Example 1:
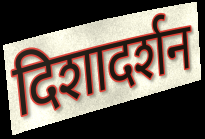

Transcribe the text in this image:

दिशादर्शन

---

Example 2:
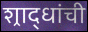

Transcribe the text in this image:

श्राद्धांची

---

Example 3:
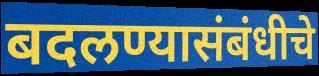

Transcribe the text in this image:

बदलण्यासंबंधीचे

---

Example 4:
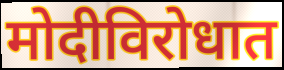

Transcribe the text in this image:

मोदीविरोधात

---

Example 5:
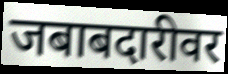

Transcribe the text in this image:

जबाबदारीवर